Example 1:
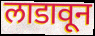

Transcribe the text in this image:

लाडावून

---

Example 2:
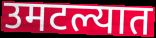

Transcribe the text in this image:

उमटल्यात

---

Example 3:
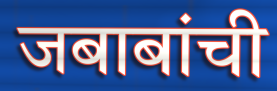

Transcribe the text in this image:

जबाबांची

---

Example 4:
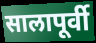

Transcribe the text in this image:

सालापूर्वी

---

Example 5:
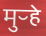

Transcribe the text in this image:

मुऱ्हे